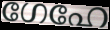
ഗേഹേ